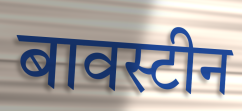
बावस्टीन